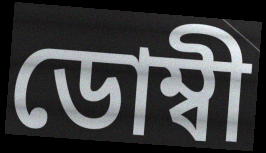
ডোম্বী